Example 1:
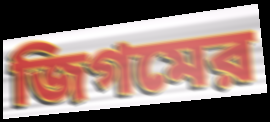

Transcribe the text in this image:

জিগমের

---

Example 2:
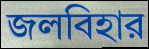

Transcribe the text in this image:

জলবিহার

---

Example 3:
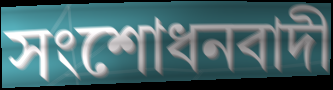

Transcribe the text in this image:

সংশোধনবাদী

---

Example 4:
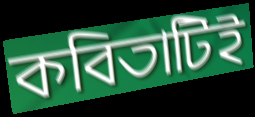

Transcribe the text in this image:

কবিতাটিই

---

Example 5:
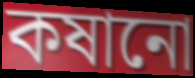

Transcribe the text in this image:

কষানো